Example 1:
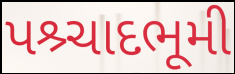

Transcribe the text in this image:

પશ્ર્ચાદભૂમી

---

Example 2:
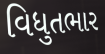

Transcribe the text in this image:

વિધુતભાર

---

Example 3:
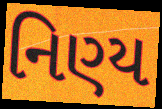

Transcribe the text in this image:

નિણ્ય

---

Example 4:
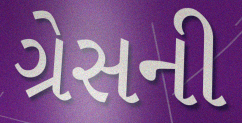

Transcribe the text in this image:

ગ્રેસની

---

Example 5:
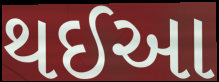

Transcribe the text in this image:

થઈઆ